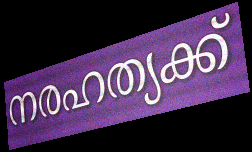
നരഹത്യക്ക്